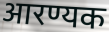
आरण्यक